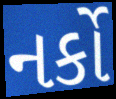
નર્કો